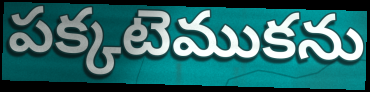
పక్కటెముకను